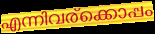
എന്നിവര്ക്കൊപ്പം